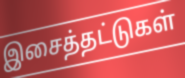
இசைத்தட்டுகள்